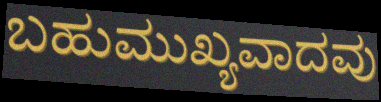
ಬಹುಮುಖ್ಯವಾದವು